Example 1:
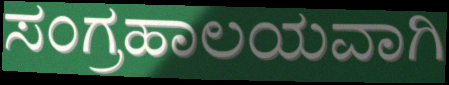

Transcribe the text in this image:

ಸಂಗ್ರಹಾಲಯವಾಗಿ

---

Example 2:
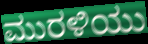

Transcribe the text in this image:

ಮುರಳಿಯು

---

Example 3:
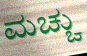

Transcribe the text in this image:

ಮಚ್ಚು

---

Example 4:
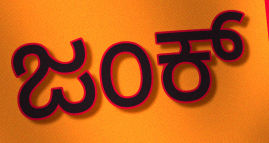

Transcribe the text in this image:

ಜಂಕ್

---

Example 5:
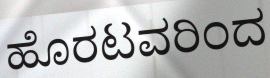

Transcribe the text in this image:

ಹೊರಟವರಿಂದ